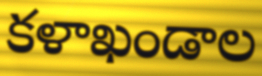
కళాఖండాల